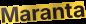
Maranta